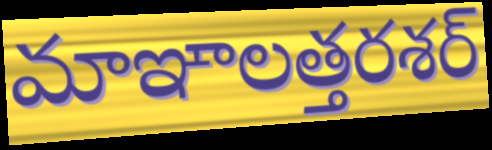
మాఞాలత్తరశర్